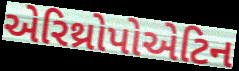
એરિથ્રોપોએટિન